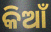
କିଆଁ